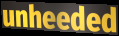
unheeded